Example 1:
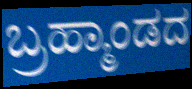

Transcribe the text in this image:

ಬ್ರಹ್ಮಾಂಡದ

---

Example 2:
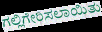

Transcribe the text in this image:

ಗಲ್ಲಿಗೇರಿಸಲಾಯಿತು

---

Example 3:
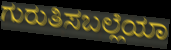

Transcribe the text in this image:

ಗುರುತಿಸಬಲ್ಲೆಯಾ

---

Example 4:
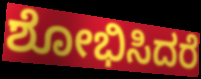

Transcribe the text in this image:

ಶೋಭಿಸಿದರೆ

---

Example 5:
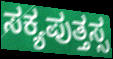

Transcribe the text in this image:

ಸಕ್ಯಪುತ್ತಸ್ಸ